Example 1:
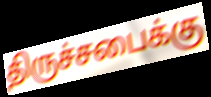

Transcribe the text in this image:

திருச்சபைக்கு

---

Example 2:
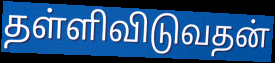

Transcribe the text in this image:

தள்ளிவிடுவதன்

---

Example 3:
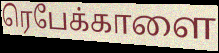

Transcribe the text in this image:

ரெபேக்காளை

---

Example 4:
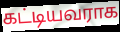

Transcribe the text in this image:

கட்டியவராக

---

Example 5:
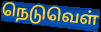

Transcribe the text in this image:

நெடுவெள்